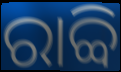
ରାବ୍ବି